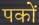
पकों